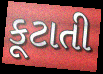
કૂટાતી